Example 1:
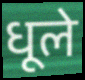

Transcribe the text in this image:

धूले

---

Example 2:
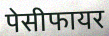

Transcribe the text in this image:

पेसीफायर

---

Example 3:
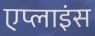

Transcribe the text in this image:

एप्लाइंस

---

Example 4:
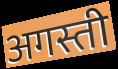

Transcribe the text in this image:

अगस्ती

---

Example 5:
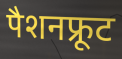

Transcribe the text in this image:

पैशनफ्रूट